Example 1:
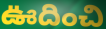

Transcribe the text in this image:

ఊదించి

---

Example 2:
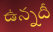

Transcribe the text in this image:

ఉన్నదీ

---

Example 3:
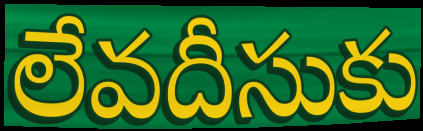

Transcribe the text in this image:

లేవదీసుకు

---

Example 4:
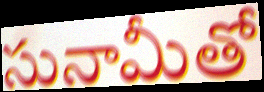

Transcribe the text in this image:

సునామీతో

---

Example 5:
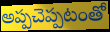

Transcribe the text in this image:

అప్పచెప్పటంతో